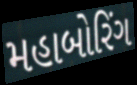
મહાબોરિંગ